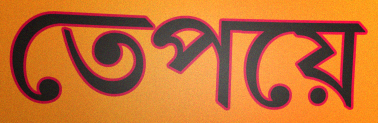
তেপয়ে